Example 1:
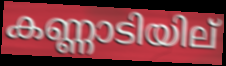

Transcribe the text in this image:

കണ്ണാടിയില്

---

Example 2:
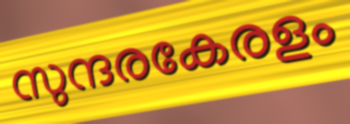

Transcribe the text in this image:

സുന്ദരകേരളം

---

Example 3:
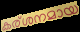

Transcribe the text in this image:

കര്ശനമായ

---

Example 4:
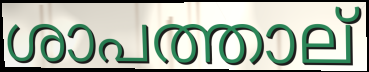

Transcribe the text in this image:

ശാപത്താല്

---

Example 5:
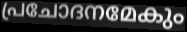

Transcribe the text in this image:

പ്രചോദനമേകും